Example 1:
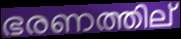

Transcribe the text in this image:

ഭരണത്തില്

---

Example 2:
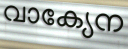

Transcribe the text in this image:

വാക്യേന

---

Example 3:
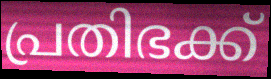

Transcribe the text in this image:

പ്രതിഭക്ക്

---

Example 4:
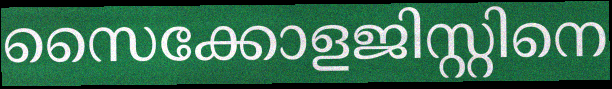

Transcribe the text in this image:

സൈക്കോളജിസ്റ്റിനെ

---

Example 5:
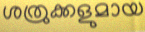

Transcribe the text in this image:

ശത്രുക്കളുമായ